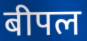
बीपल